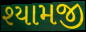
શ્યામજી